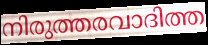
നിരുത്തരവാദിത്ത